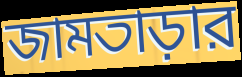
জামতাড়ার